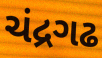
ચંદ્રગઢ